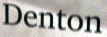
Denton